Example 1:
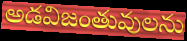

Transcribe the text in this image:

అడవిజంతువులను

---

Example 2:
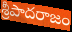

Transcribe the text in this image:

శ్రీపాదరాజం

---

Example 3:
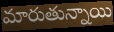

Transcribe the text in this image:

మారుతున్నాయి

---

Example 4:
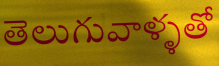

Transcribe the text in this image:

తెలుగువాళ్ళతో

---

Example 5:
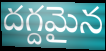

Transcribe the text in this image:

దగ్దమైన